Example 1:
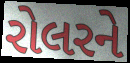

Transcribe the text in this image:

રોલરને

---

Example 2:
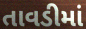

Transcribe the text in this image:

તાવડીમાં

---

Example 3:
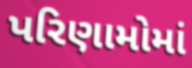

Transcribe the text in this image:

પરિણામોમાં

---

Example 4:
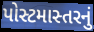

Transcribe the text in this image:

પોસ્ટમાસ્તરનું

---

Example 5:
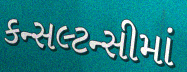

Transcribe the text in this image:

કન્સલ્ટન્સીમાં